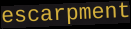
escarpment